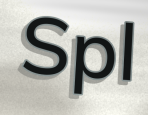
Spl